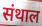
संथाल